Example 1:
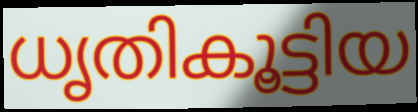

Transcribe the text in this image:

ധൃതികൂട്ടിയ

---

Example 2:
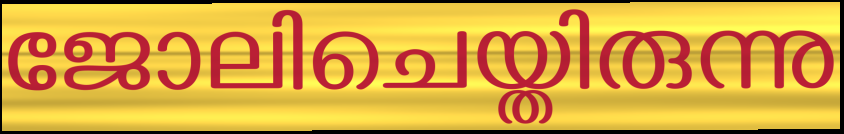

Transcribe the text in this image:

ജോലിചെയ്തിരുന്നു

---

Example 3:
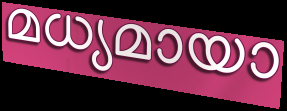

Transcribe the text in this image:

മധ്യമായാ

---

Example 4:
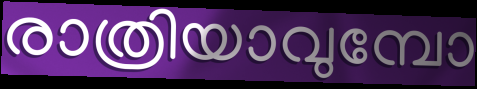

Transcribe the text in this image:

രാത്രിയാവുമ്പോ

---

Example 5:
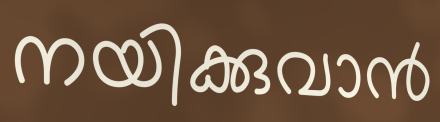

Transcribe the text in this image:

നയിക്കുവാൻ